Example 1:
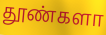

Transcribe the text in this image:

தூண்களா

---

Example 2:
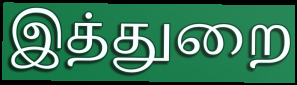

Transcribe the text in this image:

இத்துறை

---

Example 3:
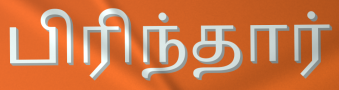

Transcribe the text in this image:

பிரிந்தார்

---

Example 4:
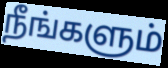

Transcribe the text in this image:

நீங்களும்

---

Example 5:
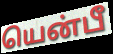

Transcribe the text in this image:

யென்பீ